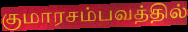
குமாரசம்பவத்தில்